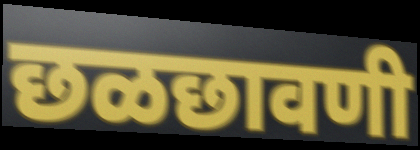
छळछावणी